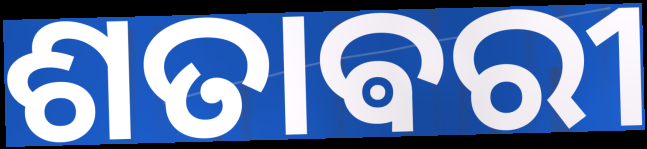
ଶତାଵରୀ